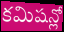
కమిషన్లో